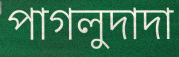
পাগলুদাদা